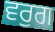
ਵਰੁਗ